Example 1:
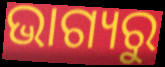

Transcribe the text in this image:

ଭାଗ୍ୟରୁ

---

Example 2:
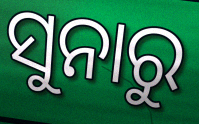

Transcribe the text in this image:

ସୁନାରୁ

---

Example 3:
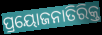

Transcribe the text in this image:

ପ୍ରୟୋଜନାତିରିକ୍ତ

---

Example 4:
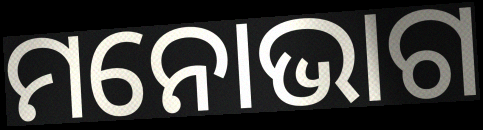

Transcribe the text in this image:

ମନୋଭାଗ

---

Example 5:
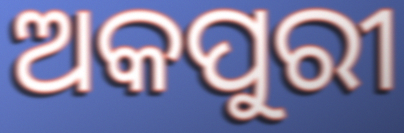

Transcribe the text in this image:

ଅକପୁରୀ